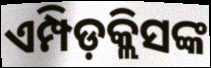
ଏମ୍ପିଡ଼କ୍ଲିସଙ୍କ